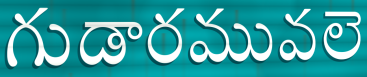
గుడారమువలె